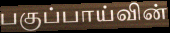
பகுப்பாய்வின்